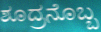
ಶೂದ್ರನೊಬ್ಬ